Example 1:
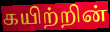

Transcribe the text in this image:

கயிற்றின்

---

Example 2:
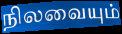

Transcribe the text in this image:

நிலவையும்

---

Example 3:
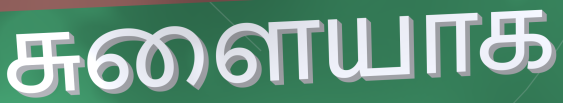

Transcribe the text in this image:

சுளையாக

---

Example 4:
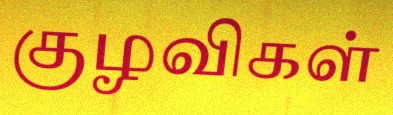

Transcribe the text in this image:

குழவிகள்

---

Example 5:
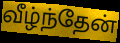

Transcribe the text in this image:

வீழ்ந்தேன்